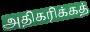
அதிகரிக்கத்